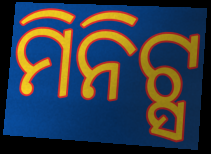
ମିନିଟ୍ସ